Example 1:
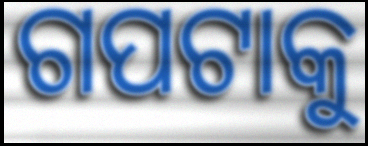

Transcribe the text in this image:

ଗପଟାକୁ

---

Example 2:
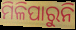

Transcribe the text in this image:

ମିଳିପାରୁନି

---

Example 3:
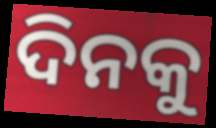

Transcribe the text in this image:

ଦିନକୁ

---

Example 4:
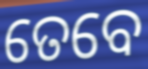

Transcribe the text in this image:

ତେବେ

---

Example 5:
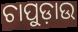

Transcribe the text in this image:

ଚାପୁଡ଼ାଉ